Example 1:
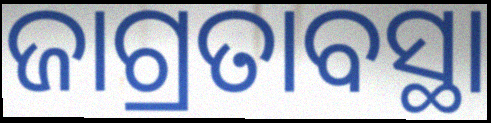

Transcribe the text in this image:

ଜାଗ୍ରତାବସ୍ଥା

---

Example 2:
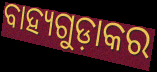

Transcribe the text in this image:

ବାହ୍ୟଗୁଡ଼ାକର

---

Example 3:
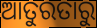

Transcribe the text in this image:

ଆତୁରତାରୁ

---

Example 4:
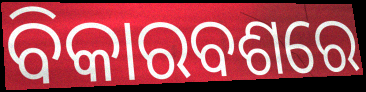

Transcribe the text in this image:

ବିକାରବଶରେ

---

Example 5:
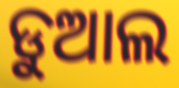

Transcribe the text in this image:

ଡୁଆଲ